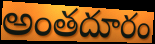
అంతదూరం